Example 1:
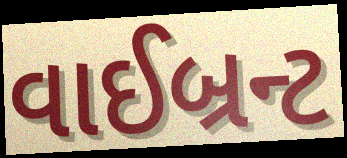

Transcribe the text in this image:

વાઈબ્રન્ટ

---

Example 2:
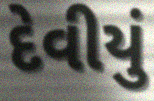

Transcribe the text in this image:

દેવીયું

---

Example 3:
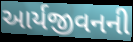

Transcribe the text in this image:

આર્યજીવનની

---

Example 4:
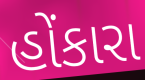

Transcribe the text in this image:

હોંકારા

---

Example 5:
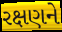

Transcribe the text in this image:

રક્ષણને